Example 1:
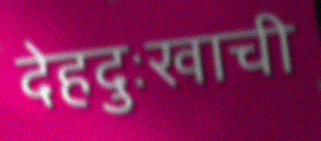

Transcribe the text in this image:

देहदुःखाची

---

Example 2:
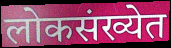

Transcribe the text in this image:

लोकसंख्येत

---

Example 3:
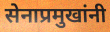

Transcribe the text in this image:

सेनाप्रमुखांनी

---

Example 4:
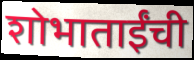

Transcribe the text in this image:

शोभाताईंची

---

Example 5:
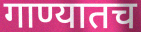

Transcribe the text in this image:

गाण्यातच